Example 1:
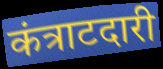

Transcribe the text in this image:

कंत्राटदारी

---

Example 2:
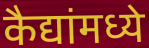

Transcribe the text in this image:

कैद्यांमध्ये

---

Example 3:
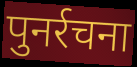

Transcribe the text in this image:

पुनर्रचना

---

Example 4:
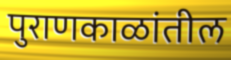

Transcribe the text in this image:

पुराणकाळांतील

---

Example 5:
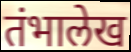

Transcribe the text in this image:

तंभालेख